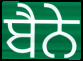
ਬੈਨੇ